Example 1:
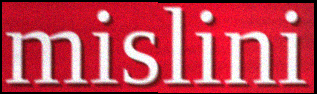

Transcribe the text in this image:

mislini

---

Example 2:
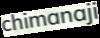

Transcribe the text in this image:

chimanaji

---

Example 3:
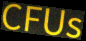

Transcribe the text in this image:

CFUs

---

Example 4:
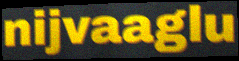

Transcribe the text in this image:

nijvaaglu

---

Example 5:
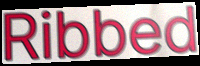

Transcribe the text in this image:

Ribbed